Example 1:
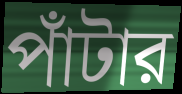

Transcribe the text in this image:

পাঁটার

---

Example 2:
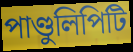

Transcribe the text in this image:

পাণ্ডুলিপিটি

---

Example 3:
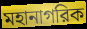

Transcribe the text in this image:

মহানাগরিক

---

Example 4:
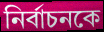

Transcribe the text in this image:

নির্বাচনকে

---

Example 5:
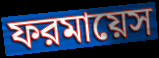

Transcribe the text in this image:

ফরমায়েস